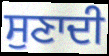
ਸੁਣਾਦੀ